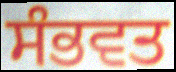
ਸੰਭਵਤ